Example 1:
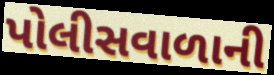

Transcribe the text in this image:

પોલીસવાળાની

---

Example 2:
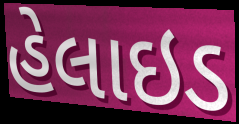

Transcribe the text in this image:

હેલાઇડ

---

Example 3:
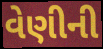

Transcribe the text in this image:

વેણીની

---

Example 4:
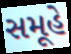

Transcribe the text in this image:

સમૂહે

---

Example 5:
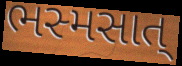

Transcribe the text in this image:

ભસ્મસાત્